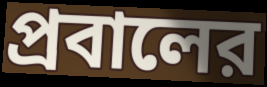
প্রবালের